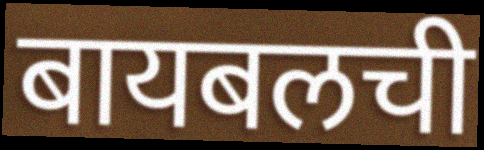
बायबलची